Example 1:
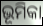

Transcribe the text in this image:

ଭୂମିକା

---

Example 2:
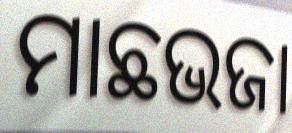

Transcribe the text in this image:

ମାଛଭଜା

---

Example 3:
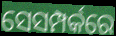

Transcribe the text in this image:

ସେସମ୍ପର୍କରେ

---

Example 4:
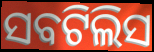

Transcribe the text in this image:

ସବଟିଲିସ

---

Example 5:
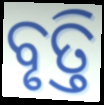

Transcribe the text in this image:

ବୃତ୍ତି